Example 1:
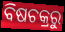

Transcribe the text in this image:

ବିଷଚକ୍ରରୁ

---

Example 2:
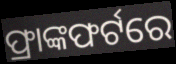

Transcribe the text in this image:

ଫ୍ରାଙ୍କଫର୍ଟରେ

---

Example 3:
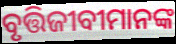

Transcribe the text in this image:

ବୃତ୍ତିଜୀବୀମାନଙ୍କ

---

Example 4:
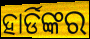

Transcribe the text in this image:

ହାର୍ଡିଙ୍କର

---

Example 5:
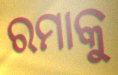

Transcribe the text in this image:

ରମାକୁ